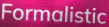
Formalistic